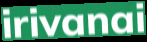
irivanai